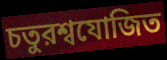
চতুরশ্বযোজিত